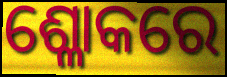
ଶ୍ଳୋକରେ